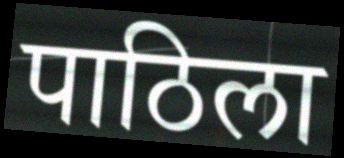
पाठिला